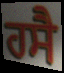
ਹਸੈ